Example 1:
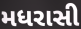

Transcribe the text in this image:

મધરાસી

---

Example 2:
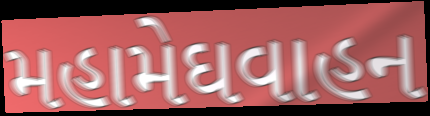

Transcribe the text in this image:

મહામેઘવાહન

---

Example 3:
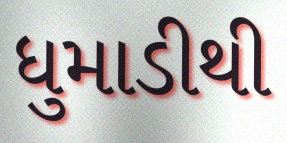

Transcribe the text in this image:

ધુમાડીથી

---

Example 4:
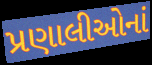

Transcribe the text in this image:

પ્રણાલીઓનાં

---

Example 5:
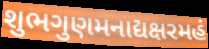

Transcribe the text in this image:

શુભગુણમનાદ્યક્ષરમહં